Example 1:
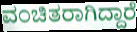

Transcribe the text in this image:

ವಂಚಿತರಾಗಿದ್ದಾರೆ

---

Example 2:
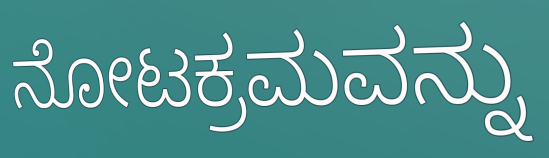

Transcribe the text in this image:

ನೋಟಕ್ರಮವನ್ನು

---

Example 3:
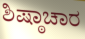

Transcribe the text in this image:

ಶಿಷ್ಠಾಚಾರ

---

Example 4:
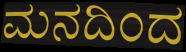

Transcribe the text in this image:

ಮನದಿಂದ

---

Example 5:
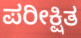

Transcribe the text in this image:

ಪರೀಕ್ಷಿತ